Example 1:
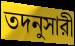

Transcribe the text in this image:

তদনুসারী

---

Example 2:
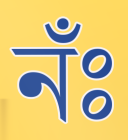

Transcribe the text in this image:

নঁঃ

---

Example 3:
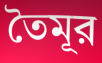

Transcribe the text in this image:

তৈমূর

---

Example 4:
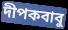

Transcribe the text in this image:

দীপকবাবু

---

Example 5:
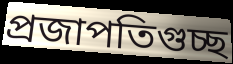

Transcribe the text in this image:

প্রজাপতিগুচ্ছ